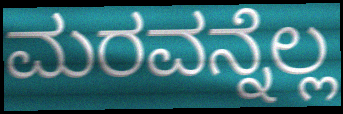
ಮರವನ್ನೆಲ್ಲ